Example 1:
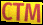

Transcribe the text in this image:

CTM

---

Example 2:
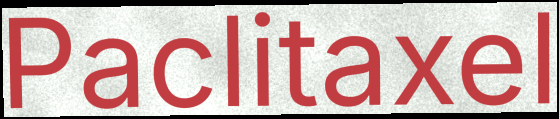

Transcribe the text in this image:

Paclitaxel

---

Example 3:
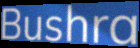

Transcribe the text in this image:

Bushra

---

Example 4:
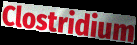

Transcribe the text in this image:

Clostridium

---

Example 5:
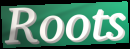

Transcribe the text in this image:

Roots